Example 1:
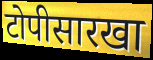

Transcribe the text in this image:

टोपीसारखा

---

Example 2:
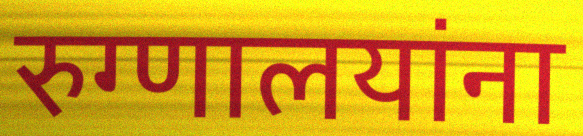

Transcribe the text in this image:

रुग्णालयांना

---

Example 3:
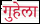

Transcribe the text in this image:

गुहेला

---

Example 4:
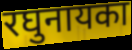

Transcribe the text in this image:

रघुनायका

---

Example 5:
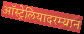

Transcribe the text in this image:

ऑस्ट्रेलियादरम्यान